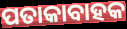
ପତାକାବାହକ